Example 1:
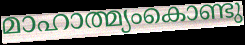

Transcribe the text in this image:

മാഹാത്മ്യംകൊണ്ടു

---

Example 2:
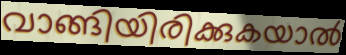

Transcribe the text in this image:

വാങ്ങിയിരിക്കുകയാൽ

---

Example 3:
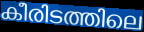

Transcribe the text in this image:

കീരിടത്തിലെ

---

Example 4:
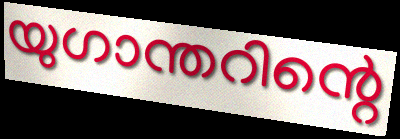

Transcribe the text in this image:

യുഗാന്തറിന്റെ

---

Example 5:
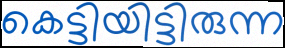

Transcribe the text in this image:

കെട്ടിയിട്ടിരുന്ന